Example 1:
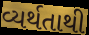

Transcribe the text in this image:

વ્યર્થતાથી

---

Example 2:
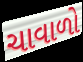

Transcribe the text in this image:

ચાવાળો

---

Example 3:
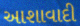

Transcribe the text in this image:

આશાવાદી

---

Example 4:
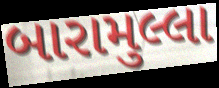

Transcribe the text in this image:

બારામુલ્લા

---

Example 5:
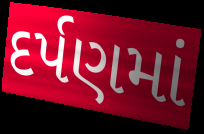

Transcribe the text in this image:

દર્પણમાં